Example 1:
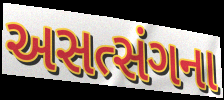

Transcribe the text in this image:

અસત્સંગના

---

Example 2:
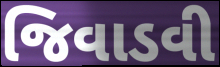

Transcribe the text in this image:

જિવાડવી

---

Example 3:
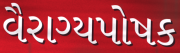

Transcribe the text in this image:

વૈરાગ્યપોષક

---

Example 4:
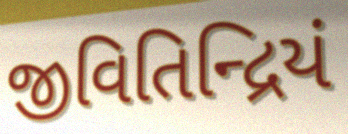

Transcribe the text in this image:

જીવિતિન્દ્રિયં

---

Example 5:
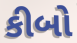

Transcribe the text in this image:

કીબો